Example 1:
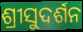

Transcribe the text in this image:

ଶ୍ରୀସୁଦର୍ଶନ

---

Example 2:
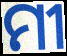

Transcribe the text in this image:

ମୀ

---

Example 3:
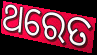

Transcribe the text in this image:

ଥରେତ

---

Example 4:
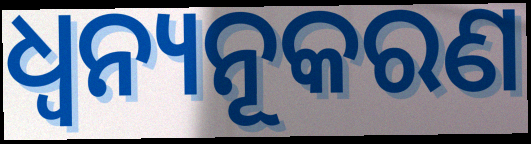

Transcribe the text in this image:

ଧ୍ୱନ୍ୟନୂକରଣ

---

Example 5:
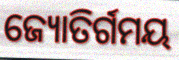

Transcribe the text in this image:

ଜ୍ୟୋତିର୍ଗମୟ